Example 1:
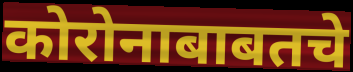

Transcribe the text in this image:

कोरोनाबाबतचे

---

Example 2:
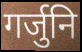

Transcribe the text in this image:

गर्जुनि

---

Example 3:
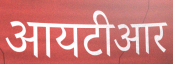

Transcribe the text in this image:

आयटीआर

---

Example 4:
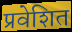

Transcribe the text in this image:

प्रवेशित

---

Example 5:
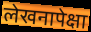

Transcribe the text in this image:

लेखनापेक्षा